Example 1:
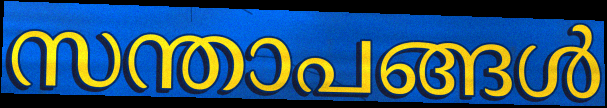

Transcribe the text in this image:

സന്താപങ്ങൾ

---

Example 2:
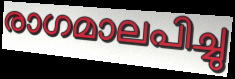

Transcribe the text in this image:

രാഗമാലപിച്ചു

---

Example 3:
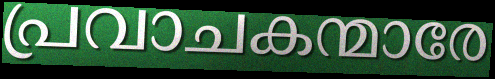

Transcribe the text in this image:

പ്രവാചകന്മാരേ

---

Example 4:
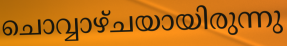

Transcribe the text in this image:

ചൊവ്വാഴ്ചയായിരുന്നു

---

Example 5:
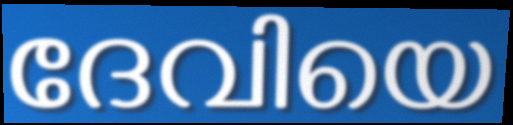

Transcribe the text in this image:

ദേവിയെ